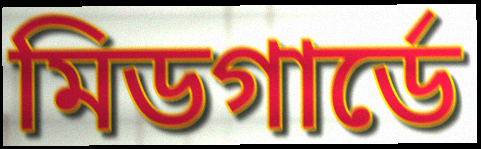
মিডগার্ডে